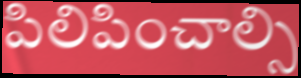
పిలిపించాల్సి